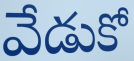
వేడుకో